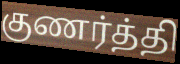
குணர்த்தி